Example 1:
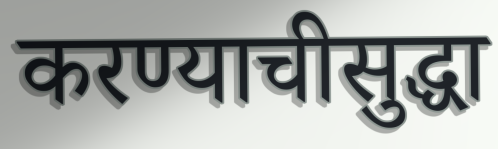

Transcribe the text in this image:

करण्याचीसुद्धा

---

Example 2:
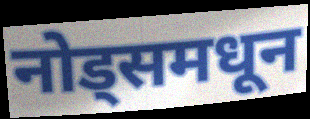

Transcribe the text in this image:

नोड्समधून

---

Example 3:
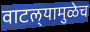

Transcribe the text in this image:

वाटल्यामुळेच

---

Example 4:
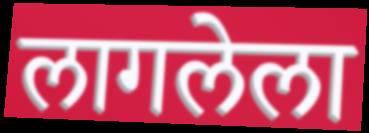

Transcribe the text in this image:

लागलेला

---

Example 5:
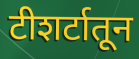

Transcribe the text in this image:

टीशर्टातून